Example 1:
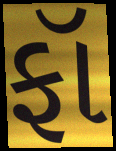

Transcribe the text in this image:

ફૉ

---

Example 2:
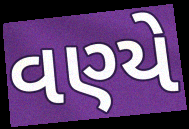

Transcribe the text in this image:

વણ્યે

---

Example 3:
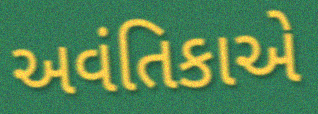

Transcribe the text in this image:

અવંતિકાએ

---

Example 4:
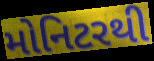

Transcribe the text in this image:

મોનિટરથી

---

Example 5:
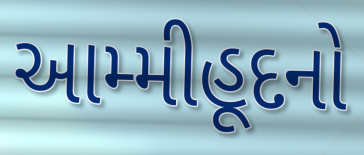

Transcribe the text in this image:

આમ્મીહૂદનો